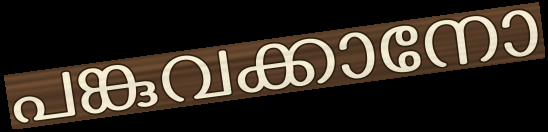
പങ്കുവക്കാനോ